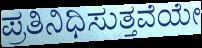
ಪ್ರತಿನಿಧಿಸುತ್ತವೆಯೇ